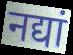
नद्यां